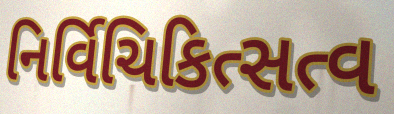
નિર્વિચિકિત્સત્વ